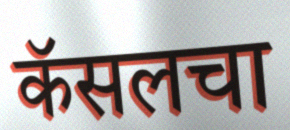
कॅसलचा